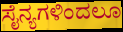
ಸೈನ್ಯಗಳಿಂದಲೂ